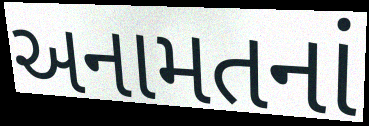
અનામતનાં